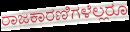
ರಾಜಕಾರಣಿಗಳೆಲ್ಲರೂ